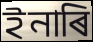
ইনাৰি